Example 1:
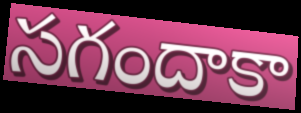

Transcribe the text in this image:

సగందాకా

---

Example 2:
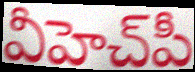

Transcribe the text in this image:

వీహెచ్‌పీ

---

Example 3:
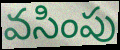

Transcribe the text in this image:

వసింపు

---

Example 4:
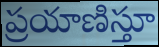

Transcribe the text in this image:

ప్రయాణిస్తూ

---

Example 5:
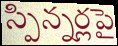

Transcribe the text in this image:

స్పిన్నర్లపై